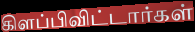
கிளப்பிவிட்டார்கள்